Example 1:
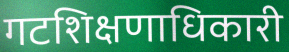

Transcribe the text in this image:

गटशिक्षणाधिकारी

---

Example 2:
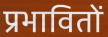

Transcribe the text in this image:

प्रभावितों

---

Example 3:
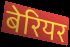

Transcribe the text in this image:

बेरियर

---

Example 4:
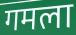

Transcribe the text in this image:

गमला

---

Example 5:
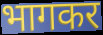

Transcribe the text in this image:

भागकर